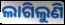
ଲାଗିଲୁଣି